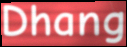
Dhang